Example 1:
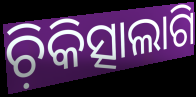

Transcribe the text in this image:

ଚ଼ିକିତ୍ସାଲାଗି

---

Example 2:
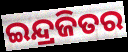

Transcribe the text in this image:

ଇନ୍ଦ୍ରଜିତର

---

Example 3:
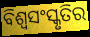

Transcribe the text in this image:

ବିଶ୍ୱସଂସ୍କୃତିର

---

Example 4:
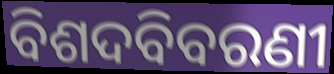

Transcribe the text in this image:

ବିଶଦବିବରଣୀ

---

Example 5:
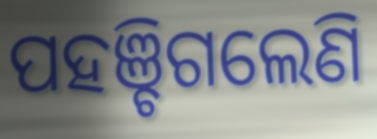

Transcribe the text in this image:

ପହଞ୍ଚିଗଲେଣି